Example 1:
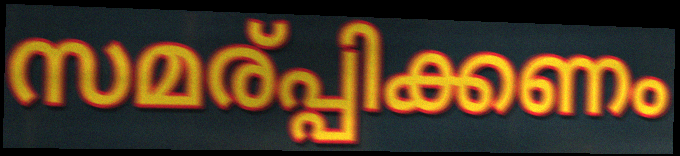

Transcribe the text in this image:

സമര്പ്പിക്കണം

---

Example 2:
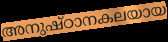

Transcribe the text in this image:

അനുഷ്ഠാനകലയായ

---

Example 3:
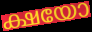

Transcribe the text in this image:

ക്ഷയോ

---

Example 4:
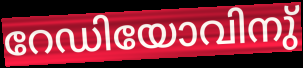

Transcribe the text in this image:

റേഡിയോവിനു്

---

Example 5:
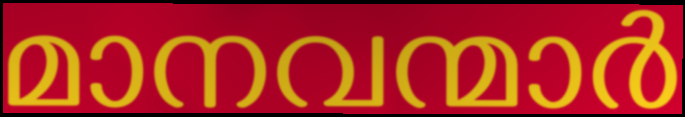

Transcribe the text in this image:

മാനവന്മാർ